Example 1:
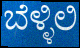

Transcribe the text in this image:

ಬೆಳ್ಳಿಲಿ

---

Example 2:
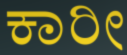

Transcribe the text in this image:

ಕಾರೀ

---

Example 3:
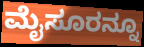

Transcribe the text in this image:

ಮೈಸೂರನ್ನೂ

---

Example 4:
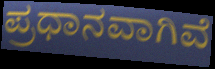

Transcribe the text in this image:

ಪ್ರಧಾನವಾಗಿವೆ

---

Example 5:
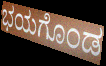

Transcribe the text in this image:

ಭಯಗೊಂಡ